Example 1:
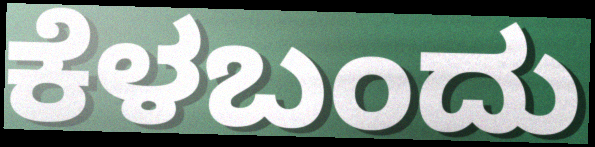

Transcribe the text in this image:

ಕೆಳಬಂದು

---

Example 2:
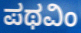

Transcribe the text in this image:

ಪಥವಿಂ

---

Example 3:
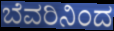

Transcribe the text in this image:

ಬೆವರಿನಿಂದ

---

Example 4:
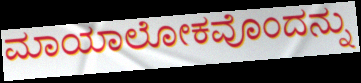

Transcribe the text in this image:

ಮಾಯಾಲೋಕವೊಂದನ್ನು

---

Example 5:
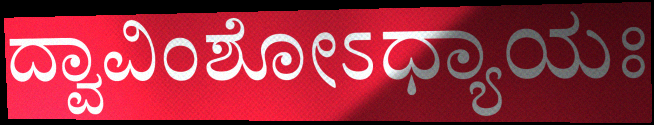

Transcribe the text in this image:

ದ್ವಾವಿಂಶೋಽಧ್ಯಾಯಃ